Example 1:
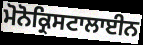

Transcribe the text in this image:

ਮੋਨੋਕ੍ਰਿਸਟਾਲਾਈਨ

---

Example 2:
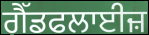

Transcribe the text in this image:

ਗੈੱਡਫਲਾਈਜ਼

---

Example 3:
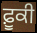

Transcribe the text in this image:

ਫ਼ੂਕੀ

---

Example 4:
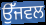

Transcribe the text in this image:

ਉੱਜਵਲ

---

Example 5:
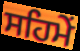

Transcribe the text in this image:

ਸਹਿਮੇਂ